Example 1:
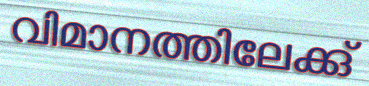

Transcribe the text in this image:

വിമാനത്തിലേക്കു്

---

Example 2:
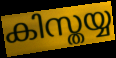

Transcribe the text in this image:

കിസ്തയ്യ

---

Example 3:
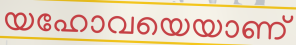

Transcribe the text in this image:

യഹോവയെയാണ്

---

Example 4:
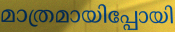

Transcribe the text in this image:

മാത്രമായിപ്പോയി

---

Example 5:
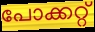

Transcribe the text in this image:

പോക്കറ്റ്